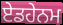
ਏਡਹੇਨਮ